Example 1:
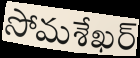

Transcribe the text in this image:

సోమశేఖర్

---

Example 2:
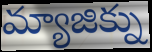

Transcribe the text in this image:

మ్యాజిక్ను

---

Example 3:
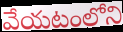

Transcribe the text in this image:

వేయటంలోని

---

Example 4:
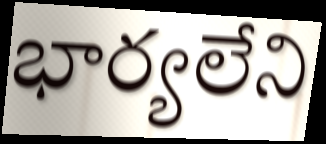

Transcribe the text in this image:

భార్యలేని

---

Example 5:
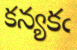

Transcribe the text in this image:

కన్యకఁ